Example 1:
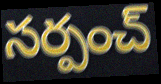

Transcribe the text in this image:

సర్పంచ్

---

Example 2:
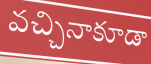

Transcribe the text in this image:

వచ్చినాకూడా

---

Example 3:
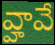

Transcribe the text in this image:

వ్హావే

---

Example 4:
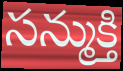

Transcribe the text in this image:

సన్ముక్తి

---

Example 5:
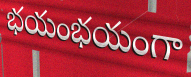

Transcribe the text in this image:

భయంభయంగా